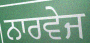
ਨਾਰਵੇਜ